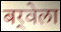
बर्वेला